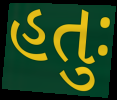
હતુઃ